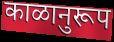
काळानुरूप